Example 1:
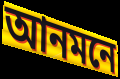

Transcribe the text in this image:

আনমনে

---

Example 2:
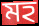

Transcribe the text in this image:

মহ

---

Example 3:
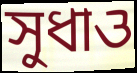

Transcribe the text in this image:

সুধাও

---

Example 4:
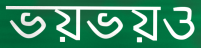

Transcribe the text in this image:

ভয়ভয়ও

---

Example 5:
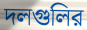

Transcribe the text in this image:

দলগুলির